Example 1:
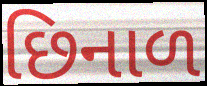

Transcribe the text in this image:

છિનાળ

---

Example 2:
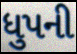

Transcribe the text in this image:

ધુપની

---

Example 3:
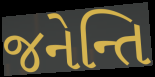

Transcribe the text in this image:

જનેન્તિ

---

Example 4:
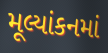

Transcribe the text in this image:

મૂલ્યાંકનમાં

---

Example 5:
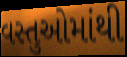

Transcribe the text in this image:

વસ્તુઓમાંથી